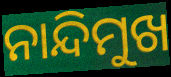
ନାନ୍ଦିମୁଖ